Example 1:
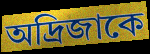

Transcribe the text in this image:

অদ্রিজাকে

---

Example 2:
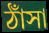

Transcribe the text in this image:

ঠাঁসা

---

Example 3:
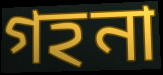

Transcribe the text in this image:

গহনা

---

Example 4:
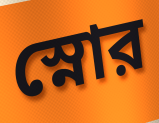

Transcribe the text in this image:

স্নোর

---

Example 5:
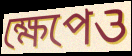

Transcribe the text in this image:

ক্ষেপেও